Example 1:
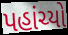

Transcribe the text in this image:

પહાંચ્યો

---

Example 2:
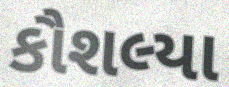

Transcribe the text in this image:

કૌશલ્યા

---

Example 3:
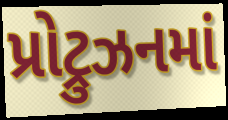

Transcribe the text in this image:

પ્રોટ્રુઝનમાં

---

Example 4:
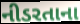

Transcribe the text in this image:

નીડરતાના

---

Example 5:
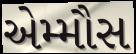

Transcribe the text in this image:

એમ્મૌસ